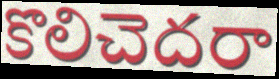
కొలిచెదరా